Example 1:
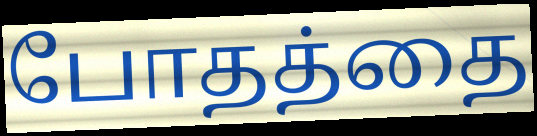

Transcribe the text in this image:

போதத்தை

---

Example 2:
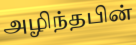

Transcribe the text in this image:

அழிந்தபின்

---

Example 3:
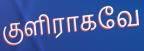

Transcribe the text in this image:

குளிராகவே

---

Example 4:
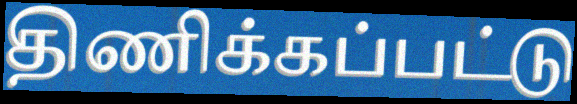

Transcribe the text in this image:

திணிக்கப்பட்டு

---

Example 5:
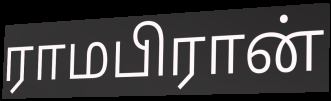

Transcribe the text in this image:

ராமபிரான்